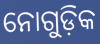
ନୋଗୁଡ଼ିକ